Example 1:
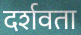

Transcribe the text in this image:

दर्शवता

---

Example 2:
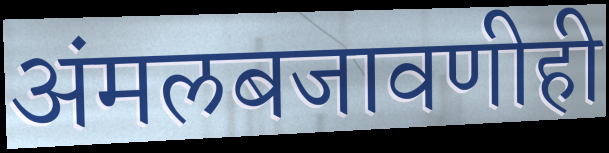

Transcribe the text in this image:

अंमलबजावणीही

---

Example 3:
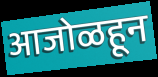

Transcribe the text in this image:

आजोळहून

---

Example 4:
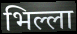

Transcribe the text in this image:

भिल्ला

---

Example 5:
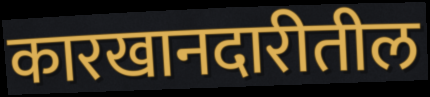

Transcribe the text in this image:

कारखानदारीतील